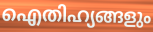
ഐതിഹ്യങ്ങളും